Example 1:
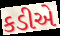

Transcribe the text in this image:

કડીએ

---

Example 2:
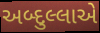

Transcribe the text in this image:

અબ્દુલ્લાએ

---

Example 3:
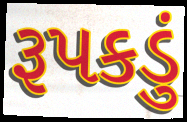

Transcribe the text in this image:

રૂપકડું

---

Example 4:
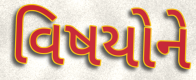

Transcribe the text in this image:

વિષયોને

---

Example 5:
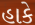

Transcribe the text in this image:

હાકે